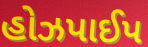
હોઝપાઈપ